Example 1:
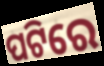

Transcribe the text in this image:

ପଟିରେ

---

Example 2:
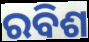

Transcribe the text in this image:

ରବିଶ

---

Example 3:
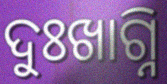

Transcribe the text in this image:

ଦୁଃଖାଗ୍ନି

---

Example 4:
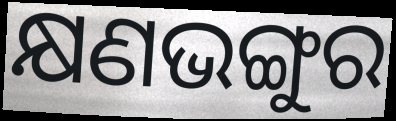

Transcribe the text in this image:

କ୍ଷଣଭଙ୍ଗୁର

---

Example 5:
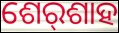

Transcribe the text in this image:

ଶେର୍‌ଶାହ